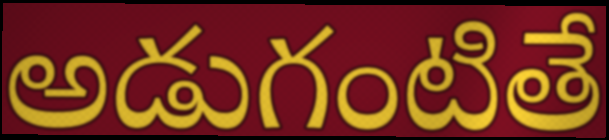
అడుగంటితే